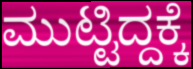
ಮುಟ್ಟಿದ್ದಕ್ಕೆ